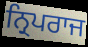
ਨ੍ਰਿਪਰਾਜ